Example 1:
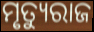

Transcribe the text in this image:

ମୃତ୍ୟୁରାଜ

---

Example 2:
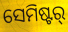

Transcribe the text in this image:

ସେମିଷ୍ଟର୍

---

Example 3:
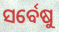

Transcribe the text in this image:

ସର୍ବେଷୁ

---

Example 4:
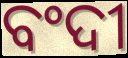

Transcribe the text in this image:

ବଂଦୀ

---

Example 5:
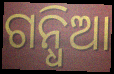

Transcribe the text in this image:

ଗନ୍ଧିଆ